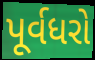
પૂર્વધરો